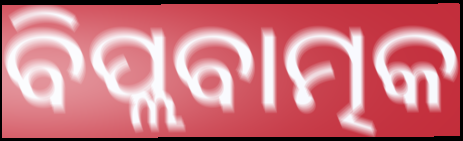
ବିପ୍ଲବାତ୍ମକ